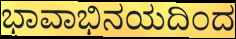
ಭಾವಾಭಿನಯದಿಂದ